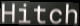
Hitch